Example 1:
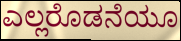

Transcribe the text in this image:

ಎಲ್ಲರೊಡನೆಯೂ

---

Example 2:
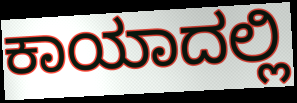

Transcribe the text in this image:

ಕಾಯಾದಲ್ಲಿ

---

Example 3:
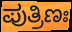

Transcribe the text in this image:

ಪುತ್ರಿಣಃ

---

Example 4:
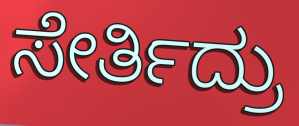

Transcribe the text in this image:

ಸೇರ್ತಿದ್ರು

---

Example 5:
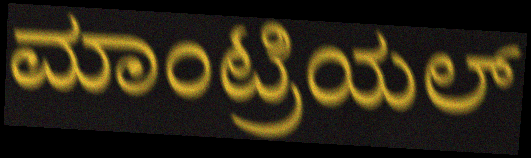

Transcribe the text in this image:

ಮಾಂಟ್ರಿಯಲ್